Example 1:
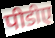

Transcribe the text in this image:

पीडीए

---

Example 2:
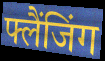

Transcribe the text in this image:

फ्लैंजिंग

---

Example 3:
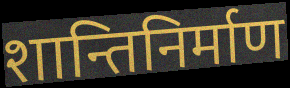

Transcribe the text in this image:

शान्तिनिर्माण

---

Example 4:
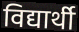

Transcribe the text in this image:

विद्यार्थी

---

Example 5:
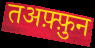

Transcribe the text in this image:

तअफ़्फ़ुन